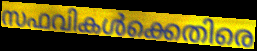
സഫവികൾക്കെതിരെ